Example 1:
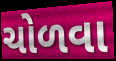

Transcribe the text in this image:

ચોળવા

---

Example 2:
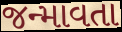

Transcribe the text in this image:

જન્માવતા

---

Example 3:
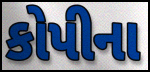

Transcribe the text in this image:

કોપીના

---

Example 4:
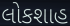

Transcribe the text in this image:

લોકશાહ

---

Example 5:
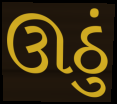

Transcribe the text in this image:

ઊઠું